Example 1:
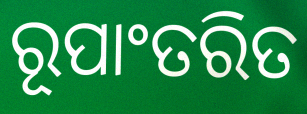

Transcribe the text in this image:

ରୂପାଂତରିତ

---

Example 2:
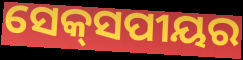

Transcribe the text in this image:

ସେକ୍‌ସପୀୟର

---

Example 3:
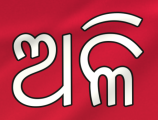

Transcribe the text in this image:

ଅଳି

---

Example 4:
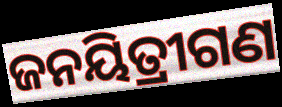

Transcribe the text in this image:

ଜନୟିତ୍ରୀଗଣ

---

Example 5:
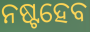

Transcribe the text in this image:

ନଷ୍ଟହେବ